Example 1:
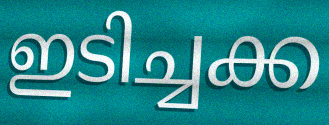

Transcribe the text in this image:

ഇടിച്ചക്ക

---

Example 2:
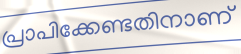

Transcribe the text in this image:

പ്രാപിക്കേണ്ടതിനാണ്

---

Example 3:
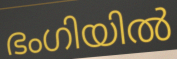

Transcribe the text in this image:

ഭംഗിയിൽ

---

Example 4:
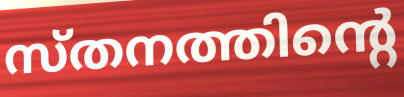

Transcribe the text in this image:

സ്തനത്തിന്റെ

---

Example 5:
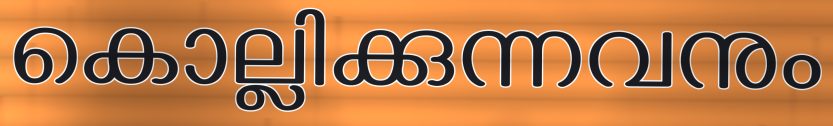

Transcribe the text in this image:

കൊല്ലിക്കുന്നവനും